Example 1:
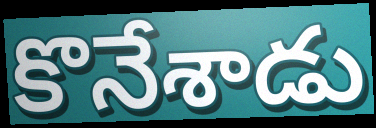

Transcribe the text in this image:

కొనేశాడు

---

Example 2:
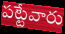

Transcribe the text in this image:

పట్టేవారు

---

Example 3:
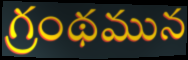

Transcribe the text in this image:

గ్రంథమున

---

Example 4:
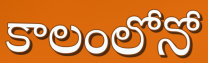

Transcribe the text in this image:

కాలంలోనో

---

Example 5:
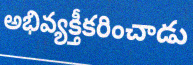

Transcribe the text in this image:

అభివ్యక్తీకరించాడు